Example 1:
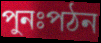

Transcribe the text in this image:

পুনঃপঠন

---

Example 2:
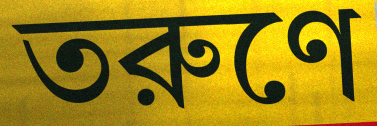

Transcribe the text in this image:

তরুণে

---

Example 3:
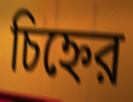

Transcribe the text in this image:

চিহ্নের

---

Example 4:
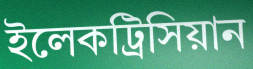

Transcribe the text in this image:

ইলেকট্রিসিয়ান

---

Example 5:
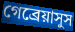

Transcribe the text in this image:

গেব্রেয়াসুস